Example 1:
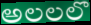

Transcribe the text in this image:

అలలలొ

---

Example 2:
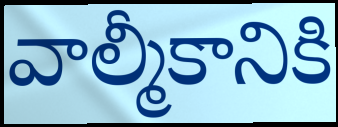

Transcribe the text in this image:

వాల్మీకానికి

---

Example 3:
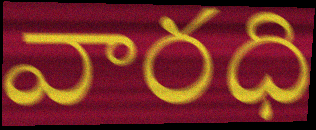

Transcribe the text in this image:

వారధి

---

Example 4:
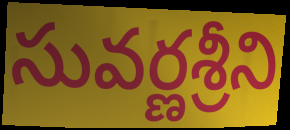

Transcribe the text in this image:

సువర్ణశ్రీని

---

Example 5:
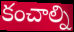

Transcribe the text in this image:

కంచాల్ని